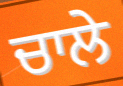
ਚਾਲੇ